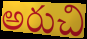
అరుచి